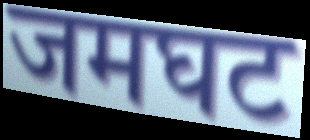
जमघट